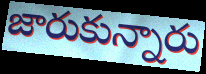
జారుకున్నారు